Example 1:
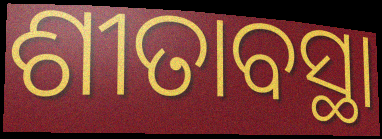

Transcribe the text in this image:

ଶୀତାବସ୍ଥା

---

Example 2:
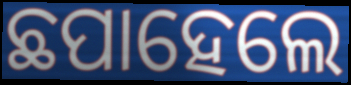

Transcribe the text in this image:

ଛପାହେଲେ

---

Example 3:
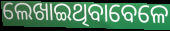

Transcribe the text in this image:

ଲେଖାଇଥିବାବେଳେ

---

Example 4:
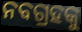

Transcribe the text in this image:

ନବଗ୍ରହକୁ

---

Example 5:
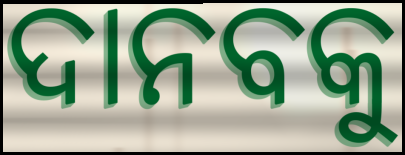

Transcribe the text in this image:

ଦାନବକୁ